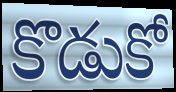
కొడుకో